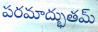
పరమాద్భుతమ్